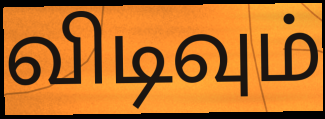
விடிவும்